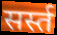
सर्स्त